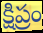
క్షిప్రం